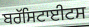
ਬਰੱਸਿਟਾਈਟਸ